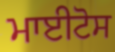
ਮਾਈਟੋਸ